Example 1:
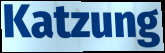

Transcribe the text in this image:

Katzung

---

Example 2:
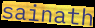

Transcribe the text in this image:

sainath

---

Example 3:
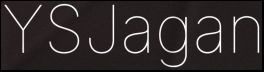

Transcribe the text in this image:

YSJagan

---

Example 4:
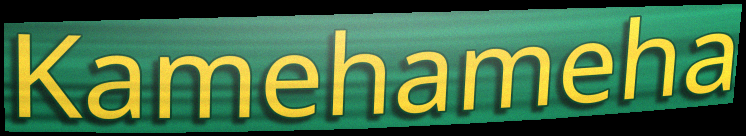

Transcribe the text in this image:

Kamehameha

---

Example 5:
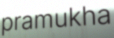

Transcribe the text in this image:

pramukha